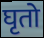
घृतो